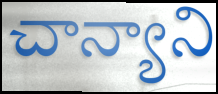
చాన్యాని